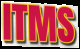
ITMS